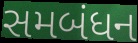
સમબંધન